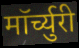
मॉर्च्युरी